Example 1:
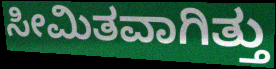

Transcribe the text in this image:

ಸೀಮಿತವಾಗಿತ್ತು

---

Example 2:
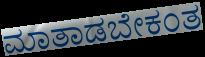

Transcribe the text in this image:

ಮಾತಾಡಬೇಕಂತ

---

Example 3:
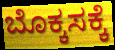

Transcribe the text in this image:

ಬೊಕ್ಕಸಕ್ಕೆ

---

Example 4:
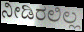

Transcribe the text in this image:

ನೀಡಿರಲಿಲ್ಲ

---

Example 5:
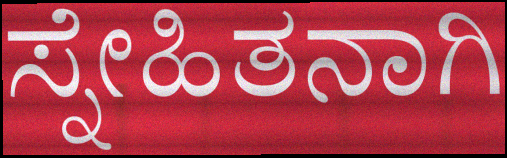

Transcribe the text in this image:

ಸ್ನೇಹಿತನಾಗಿ